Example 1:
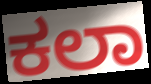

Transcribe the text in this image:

ಕಲಾ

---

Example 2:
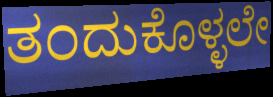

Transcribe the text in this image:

ತಂದುಕೊಳ್ಳಲೇ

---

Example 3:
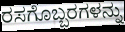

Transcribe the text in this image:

ರಸಗೊಬ್ಬರಗಳನ್ನು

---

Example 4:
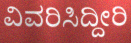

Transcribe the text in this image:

ವಿವರಿಸಿದ್ದೀರಿ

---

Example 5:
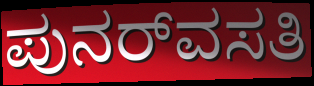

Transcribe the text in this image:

ಪುನರ್‌ವಸತಿ